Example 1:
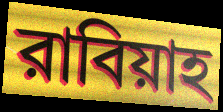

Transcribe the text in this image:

রাবিয়াহ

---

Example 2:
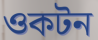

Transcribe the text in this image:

ওকটন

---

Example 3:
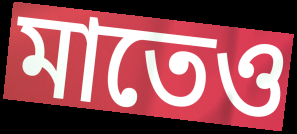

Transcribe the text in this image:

মাতেও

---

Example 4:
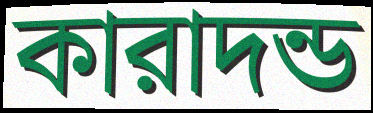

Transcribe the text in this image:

কারাদন্ড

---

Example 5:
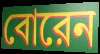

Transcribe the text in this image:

বোরেন